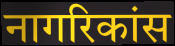
नागरिकांस